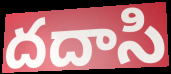
దదాసి